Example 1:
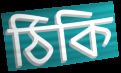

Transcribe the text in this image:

ঠিকি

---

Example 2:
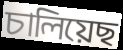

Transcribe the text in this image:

চালিয়েছ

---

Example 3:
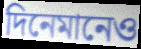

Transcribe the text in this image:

দিনেমানেও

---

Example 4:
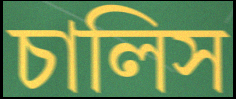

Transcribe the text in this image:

চালিস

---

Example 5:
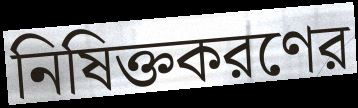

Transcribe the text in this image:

নিষিক্তকরণের